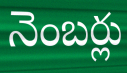
నెంబర్లు